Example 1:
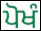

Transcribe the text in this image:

ਪੋਖੰ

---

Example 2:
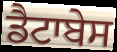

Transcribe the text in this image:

ਡੈਟਾਬੇਸ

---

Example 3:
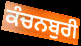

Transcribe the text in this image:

ਕੰਚਨਬੁਰੀ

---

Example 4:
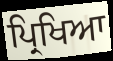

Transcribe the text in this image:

ਪ੍ਰਿਖਿਆ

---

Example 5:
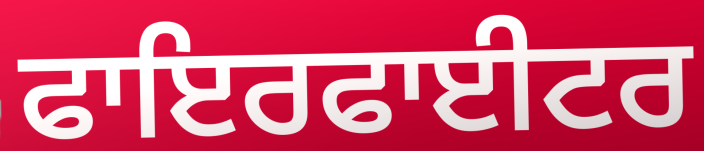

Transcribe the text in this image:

ਫਾਇਰਫਾਈਟਰ